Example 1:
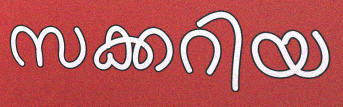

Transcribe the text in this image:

സക്കറിയ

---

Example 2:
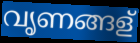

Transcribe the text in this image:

വൃണങ്ങള്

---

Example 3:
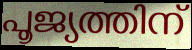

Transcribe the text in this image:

പൂജ്യത്തിന്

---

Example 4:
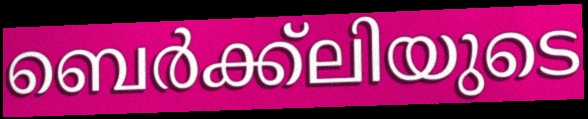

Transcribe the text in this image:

ബെർക്ക്ലിയുടെ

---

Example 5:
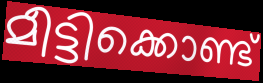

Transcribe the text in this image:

മീട്ടിക്കൊണ്ട്